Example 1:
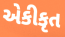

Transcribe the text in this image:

એકીકૃત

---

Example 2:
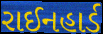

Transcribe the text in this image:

રાઈનહાર્ડ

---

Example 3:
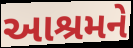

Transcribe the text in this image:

આશ્રમને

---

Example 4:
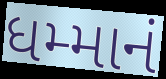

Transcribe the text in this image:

ધમ્માનં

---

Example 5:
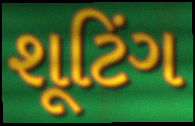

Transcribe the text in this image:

શૂટિંગ